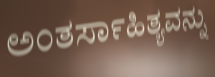
ಅಂತರ್ಸಾಹಿತ್ಯವನ್ನು